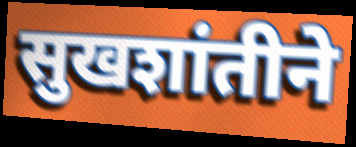
सुखशांतीने